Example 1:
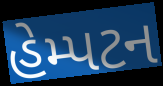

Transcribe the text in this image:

હેમ્પટન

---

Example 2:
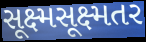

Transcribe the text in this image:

સૂક્ષ્મસૂક્ષ્મતર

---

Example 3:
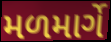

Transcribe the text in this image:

મળમાર્ગે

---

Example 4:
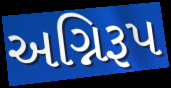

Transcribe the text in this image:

અગ્નિરૂપ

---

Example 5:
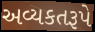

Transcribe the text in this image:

અવ્યકતરૂપે